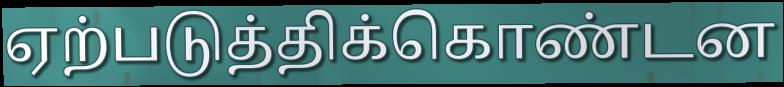
ஏற்படுத்திக்கொண்டன